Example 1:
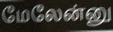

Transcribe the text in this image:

மேலேன்னு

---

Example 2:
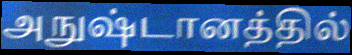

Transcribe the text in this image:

அநுஷ்டானத்தில்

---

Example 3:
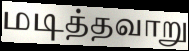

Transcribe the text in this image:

மடித்தவாறு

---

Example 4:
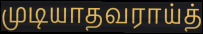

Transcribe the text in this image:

முடியாதவராய்த்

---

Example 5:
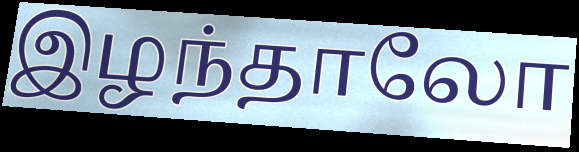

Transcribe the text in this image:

இழந்தாலோ